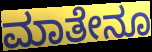
ಮಾತೇನೂ